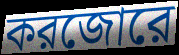
করজোরে